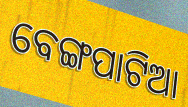
ବେଙ୍ଗପାଟିଆ